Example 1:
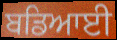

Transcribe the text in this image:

ਬਡਿਆਈ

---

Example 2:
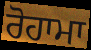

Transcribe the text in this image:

ਰੋਹਾਮਾ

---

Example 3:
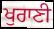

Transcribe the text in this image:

ਖੁਰਾਣੀ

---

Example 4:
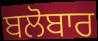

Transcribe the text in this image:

ਬਲੋਬਾਰ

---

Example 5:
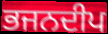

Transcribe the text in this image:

ਭਜਨਦੀਪ